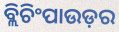
ବ୍ଲିଚିଂପାଉଡ଼ର